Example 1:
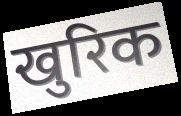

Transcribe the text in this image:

खुरिक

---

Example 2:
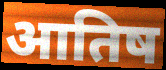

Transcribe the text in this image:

आतिष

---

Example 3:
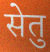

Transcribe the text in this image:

सेतु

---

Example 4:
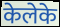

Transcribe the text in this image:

केलेके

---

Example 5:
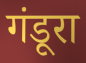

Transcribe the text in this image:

गंडूरा